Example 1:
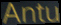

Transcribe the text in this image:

Antu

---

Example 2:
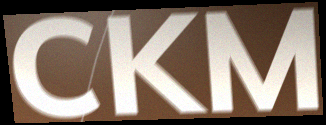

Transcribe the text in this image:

CKM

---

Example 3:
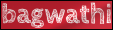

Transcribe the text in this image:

bagwathi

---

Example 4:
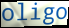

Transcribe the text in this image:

oligo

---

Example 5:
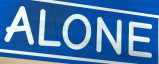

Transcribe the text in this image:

ALONE